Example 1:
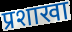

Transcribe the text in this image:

प्रशाखा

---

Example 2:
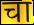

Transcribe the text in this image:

चा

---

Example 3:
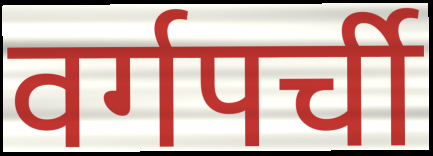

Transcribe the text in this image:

वर्गपर्ची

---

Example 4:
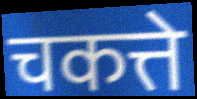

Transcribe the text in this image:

चकत्ते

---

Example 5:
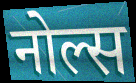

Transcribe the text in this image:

नोल्स